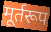
मूर्तरूप